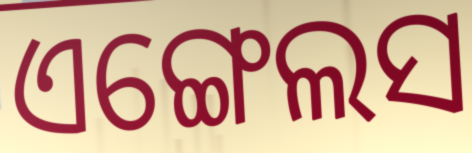
ଏଙ୍ଗେଲସ